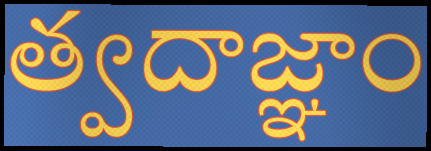
త్వదాజ్ఞాం